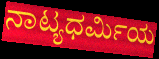
ನಾಟ್ಯಧರ್ಮಿಯ